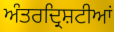
ਅੰਤਰਦ੍ਰਿਸ਼ਟੀਆਂ